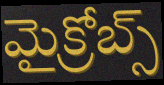
మైక్రోబ్స్